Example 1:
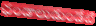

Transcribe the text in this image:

ఛండాలుడుండేటి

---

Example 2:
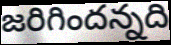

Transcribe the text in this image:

జరిగిందన్నది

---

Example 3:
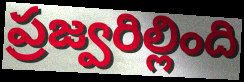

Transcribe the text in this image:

ప్రజ్వరిల్లింది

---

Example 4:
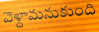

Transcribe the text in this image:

వెళ్దామనుకుంది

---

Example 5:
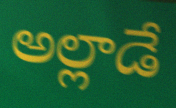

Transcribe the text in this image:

అల్లాడే